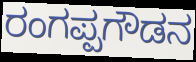
ರಂಗಪ್ಪಗೌಡನ